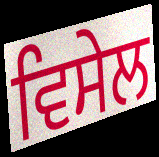
ਵਿਸੇਲ